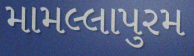
મામલ્લાપુરમ